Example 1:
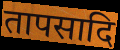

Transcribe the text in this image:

तापसादि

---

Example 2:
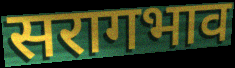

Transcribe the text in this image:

सरागभाव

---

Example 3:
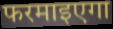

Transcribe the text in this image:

फरमाइएगा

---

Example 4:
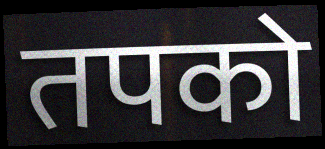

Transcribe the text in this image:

तपको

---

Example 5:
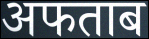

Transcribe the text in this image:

अफताब